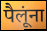
पैलूंना